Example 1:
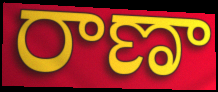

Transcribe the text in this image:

రాణా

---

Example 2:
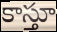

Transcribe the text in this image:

కాస్తూ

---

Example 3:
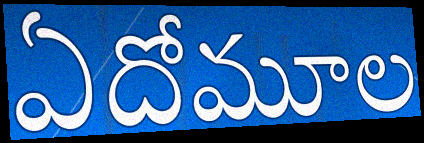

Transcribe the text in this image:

ఏదోమూల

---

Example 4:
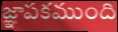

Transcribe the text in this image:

జ్ఞాపకముంది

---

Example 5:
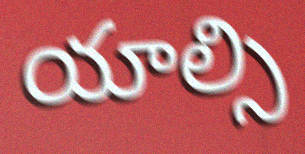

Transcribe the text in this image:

యాల్సి